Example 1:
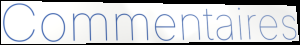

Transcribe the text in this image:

Commentaires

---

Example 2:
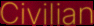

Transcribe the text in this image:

Civilian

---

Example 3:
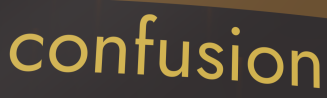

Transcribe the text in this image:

confusion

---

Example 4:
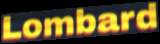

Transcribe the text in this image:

Lombard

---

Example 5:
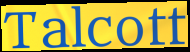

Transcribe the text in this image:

Talcott